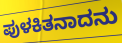
ಪುಳಕಿತನಾದನು